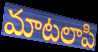
మాటలాపి